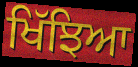
ਖਿੱਝਿਆ